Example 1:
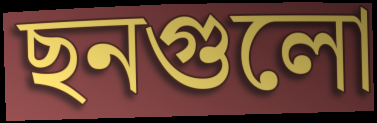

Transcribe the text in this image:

ছনগুলো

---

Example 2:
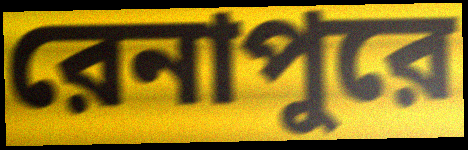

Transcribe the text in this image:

রেনাপুরে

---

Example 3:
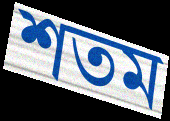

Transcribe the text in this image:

শতম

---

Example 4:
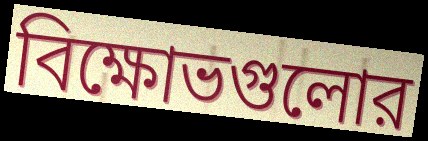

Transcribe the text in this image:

বিক্ষোভগুলোর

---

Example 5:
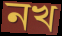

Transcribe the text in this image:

নখ